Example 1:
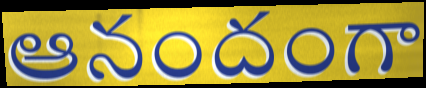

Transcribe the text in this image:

ఆనందంగా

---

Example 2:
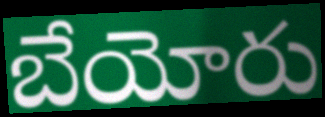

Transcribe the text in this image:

బేయోరు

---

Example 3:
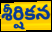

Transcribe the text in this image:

శీర్షికన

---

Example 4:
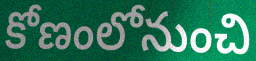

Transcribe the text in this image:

కోణంలోనుంచి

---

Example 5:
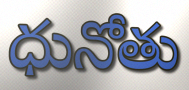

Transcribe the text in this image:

ధునోతు